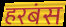
हरबंस